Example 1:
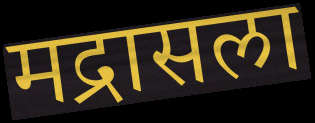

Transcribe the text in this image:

मद्रासला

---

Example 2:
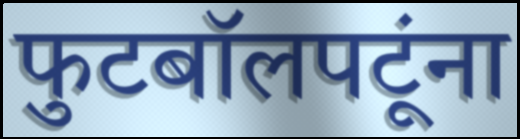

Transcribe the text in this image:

फुटबॉलपटूंना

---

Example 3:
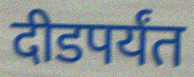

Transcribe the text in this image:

दीडपर्यंत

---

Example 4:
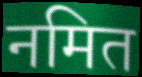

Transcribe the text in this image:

नमित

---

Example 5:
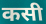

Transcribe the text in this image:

कसी